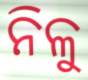
ନିଳୁ